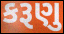
કરૂણુ